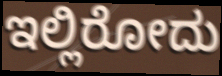
ಇಲ್ಲಿರೋದು